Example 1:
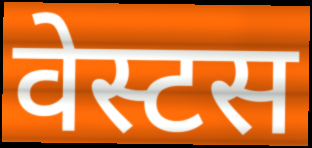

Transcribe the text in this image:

वेस्टस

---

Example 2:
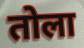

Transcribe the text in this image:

तोला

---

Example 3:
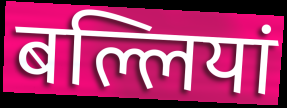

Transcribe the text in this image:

बल्लियां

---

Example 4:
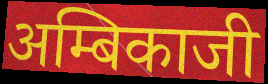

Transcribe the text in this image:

अम्बिकाजी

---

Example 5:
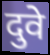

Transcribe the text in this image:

दुवे